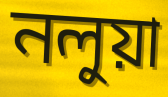
নলুয়া